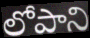
లోపాని